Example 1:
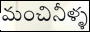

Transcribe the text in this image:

మంచినీళ్ళ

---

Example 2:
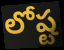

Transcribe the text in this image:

లోష్ట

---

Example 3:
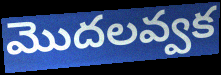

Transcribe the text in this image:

మొదలవ్వక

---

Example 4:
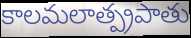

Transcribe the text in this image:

కాలమలాత్ప్రపాతు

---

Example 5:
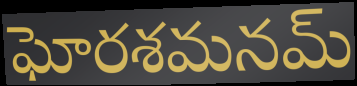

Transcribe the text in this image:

ఘోరశమనమ్